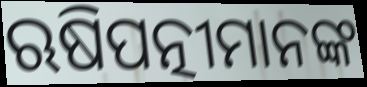
ଋଷିପତ୍ନୀମାନଙ୍କ